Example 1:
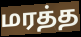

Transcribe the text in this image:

மரத்த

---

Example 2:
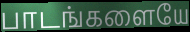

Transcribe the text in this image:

பாடங்களையே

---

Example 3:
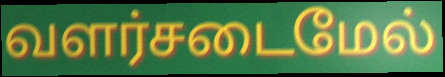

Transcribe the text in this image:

வளர்சடைமேல்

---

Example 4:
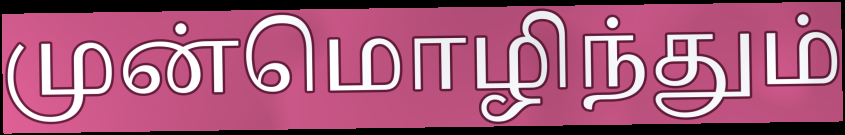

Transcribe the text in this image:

முன்மொழிந்தும்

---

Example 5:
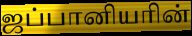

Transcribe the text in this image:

ஜப்பானியரின்